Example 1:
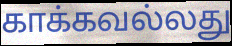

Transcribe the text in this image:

காக்கவல்லது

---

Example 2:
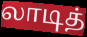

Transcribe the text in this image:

லாடித்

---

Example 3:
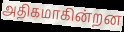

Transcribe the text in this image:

அதிகமாகின்றன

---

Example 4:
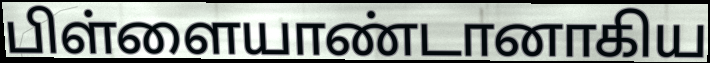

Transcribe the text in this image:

பிள்ளையாண்டானாகிய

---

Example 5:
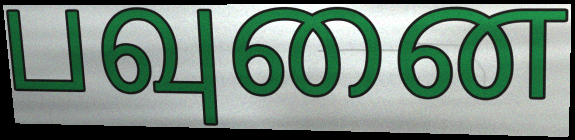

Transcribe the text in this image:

பவுனை